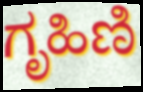
ಗೃಹಿಣಿ